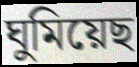
ঘুমিয়েছ